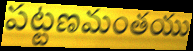
పట్టణమంతయు